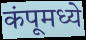
कंपूमध्ये